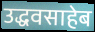
उद्धवसाहेब